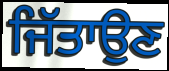
ਜਿੱਤਾਉਣ